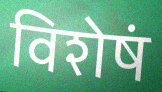
विशेषं